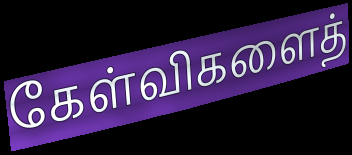
கேள்விகளைத்